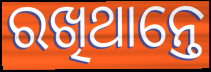
ରଖିଥାନ୍ତେ